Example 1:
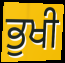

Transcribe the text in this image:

ਭੁਖੀ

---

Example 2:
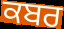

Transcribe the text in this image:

ਕਬਰ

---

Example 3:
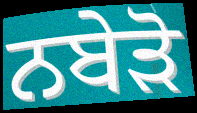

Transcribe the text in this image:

ਨਬੇੜੋ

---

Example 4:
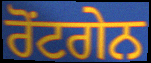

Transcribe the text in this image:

ਰੋਂਟਗੇਨ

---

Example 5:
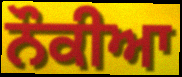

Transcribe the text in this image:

ਨੌਕੀਆ